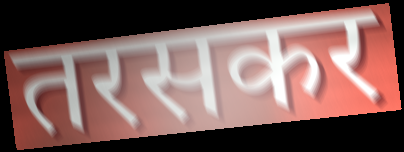
तरसकर